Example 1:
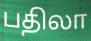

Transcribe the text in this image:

பதிலா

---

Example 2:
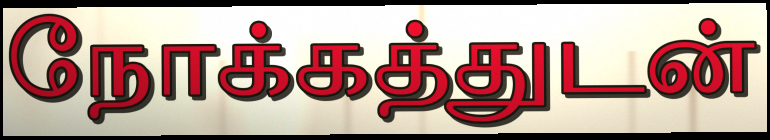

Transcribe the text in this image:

நோக்கத்துடன்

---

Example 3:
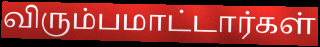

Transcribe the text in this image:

விரும்பமாட்டார்கள்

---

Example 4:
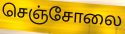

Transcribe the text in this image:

செஞ்சோலை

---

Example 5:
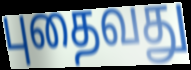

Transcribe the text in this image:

புதைவது